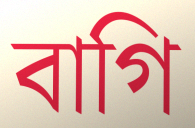
বাগি